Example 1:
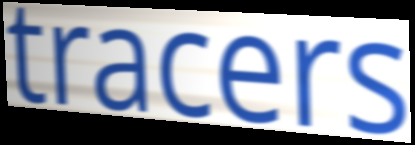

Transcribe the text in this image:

tracers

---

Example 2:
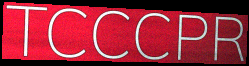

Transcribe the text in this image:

TCCCPR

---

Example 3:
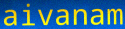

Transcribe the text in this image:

aivanam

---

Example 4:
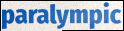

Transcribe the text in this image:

paralympic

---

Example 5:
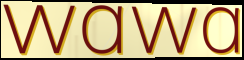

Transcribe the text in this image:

wawa